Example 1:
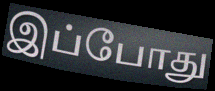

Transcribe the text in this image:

இப்போது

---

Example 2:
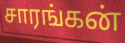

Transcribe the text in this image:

சாரங்கன்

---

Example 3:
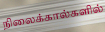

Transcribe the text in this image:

நிலைக்கால்களில்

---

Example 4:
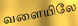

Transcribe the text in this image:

வளையிலே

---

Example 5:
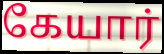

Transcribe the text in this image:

கேயார்